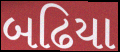
બઢિયા